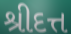
શ્રીદત્ત